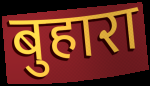
बुहारा